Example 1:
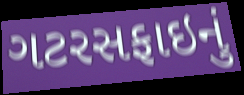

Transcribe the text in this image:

ગટરસફાઇનું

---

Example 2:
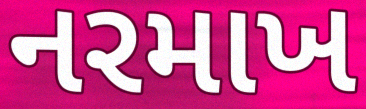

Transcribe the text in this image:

નરમાખ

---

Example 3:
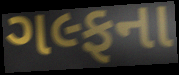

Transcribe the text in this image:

ગલ્ફના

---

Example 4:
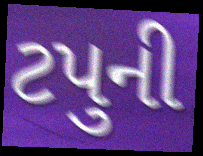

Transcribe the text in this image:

ટપુની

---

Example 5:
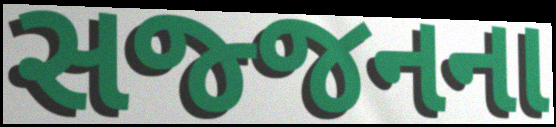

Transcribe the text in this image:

સજ્જનના